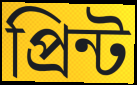
প্রিন্ট